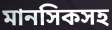
মানসিকসহ